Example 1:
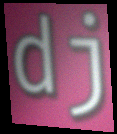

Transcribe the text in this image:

dj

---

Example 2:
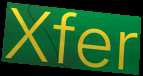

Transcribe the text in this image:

Xfer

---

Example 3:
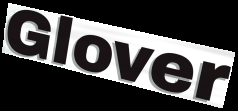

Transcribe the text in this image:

Glover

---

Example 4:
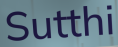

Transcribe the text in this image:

Sutthi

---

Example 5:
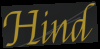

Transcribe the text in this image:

Hind